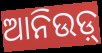
ଆନିଉଡ଼୍